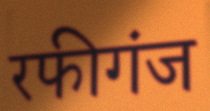
रफीगंज